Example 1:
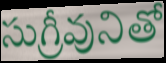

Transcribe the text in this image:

సుగ్రీవునితో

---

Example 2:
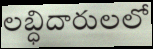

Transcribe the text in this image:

లబ్ధిదారులలో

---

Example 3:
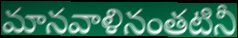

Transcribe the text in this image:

మానవాళినంతటినీ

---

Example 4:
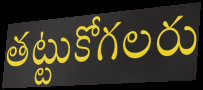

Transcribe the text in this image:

తట్టుకోగలరు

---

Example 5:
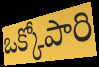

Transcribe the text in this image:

ఒక్కోపారి